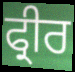
ਫ੍ਰੀਰ